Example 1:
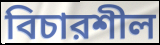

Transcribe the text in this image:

বিচারশীল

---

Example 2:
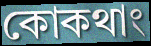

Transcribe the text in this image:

কোকথাং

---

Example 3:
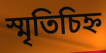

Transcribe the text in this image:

স্মৃতিচিহ্ন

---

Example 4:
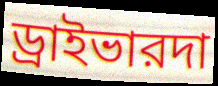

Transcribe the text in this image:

ড্রাইভারদা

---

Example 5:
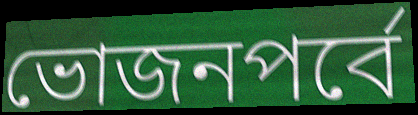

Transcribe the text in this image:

ভোজনপর্বে